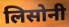
लिसोनी